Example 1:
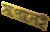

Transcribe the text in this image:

সপোনেই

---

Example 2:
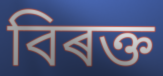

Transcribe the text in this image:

বিৰক্ত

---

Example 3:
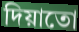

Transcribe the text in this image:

দিয়াতো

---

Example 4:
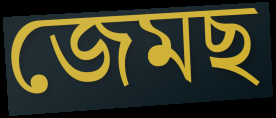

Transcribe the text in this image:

জেমছ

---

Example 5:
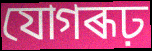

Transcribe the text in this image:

যোগৰূঢ়